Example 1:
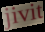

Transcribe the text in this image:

jivit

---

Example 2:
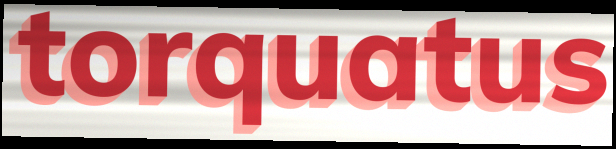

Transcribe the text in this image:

torquatus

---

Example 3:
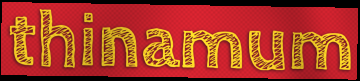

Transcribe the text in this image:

thinamum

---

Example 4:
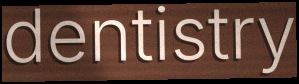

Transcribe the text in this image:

dentistry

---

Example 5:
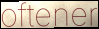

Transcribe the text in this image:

oftener